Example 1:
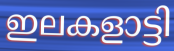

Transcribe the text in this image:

ഇലകളാട്ടി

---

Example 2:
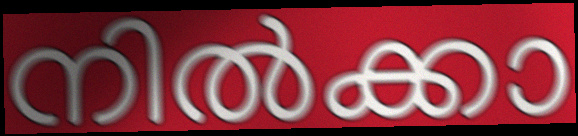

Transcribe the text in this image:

നിൽക്കാ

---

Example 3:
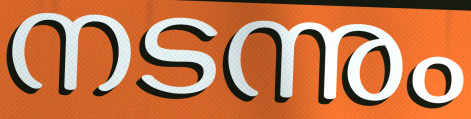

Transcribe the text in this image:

നടന്നും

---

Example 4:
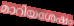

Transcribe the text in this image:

മാറിയശേഷം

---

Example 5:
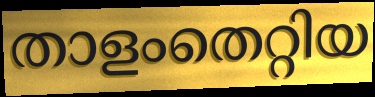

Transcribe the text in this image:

താളംതെറ്റിയ